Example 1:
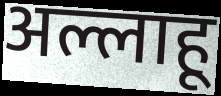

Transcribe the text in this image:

अल्लाहू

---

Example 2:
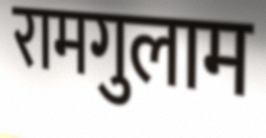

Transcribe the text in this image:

रामगुलाम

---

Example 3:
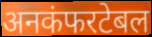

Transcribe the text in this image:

अनकंफरटेबल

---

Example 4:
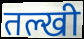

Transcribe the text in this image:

तल्‍खी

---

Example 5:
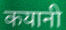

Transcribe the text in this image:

कयानी